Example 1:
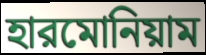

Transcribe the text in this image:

হারমোনিয়াম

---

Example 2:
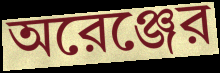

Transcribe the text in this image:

অরেঞ্জের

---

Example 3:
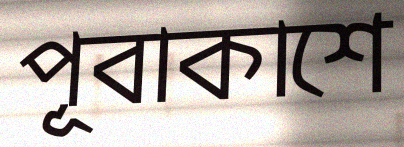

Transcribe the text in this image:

পূবাকাশে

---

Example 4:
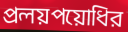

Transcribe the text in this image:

প্রলয়পয়োধির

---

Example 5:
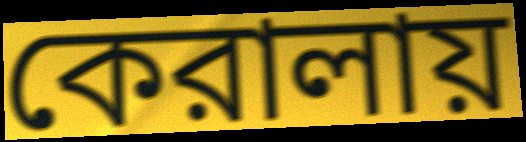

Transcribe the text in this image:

কেরালায়